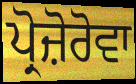
ਪ੍ਰੋਜ਼ੋਰੋਵਾ